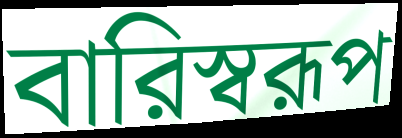
বারিস্বরূপ